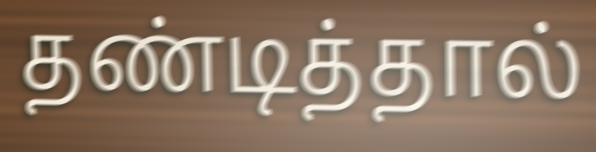
தண்டித்தால்